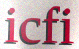
icfi